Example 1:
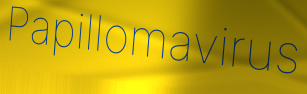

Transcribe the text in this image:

Papillomavirus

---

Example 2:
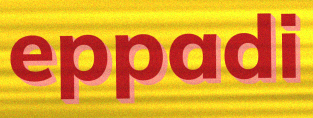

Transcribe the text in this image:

eppadi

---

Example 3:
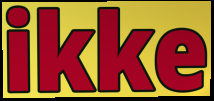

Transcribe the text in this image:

ikke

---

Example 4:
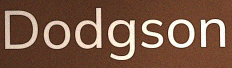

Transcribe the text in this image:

Dodgson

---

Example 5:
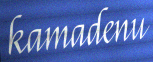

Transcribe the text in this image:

kamadenu